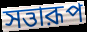
সত্তারূপ